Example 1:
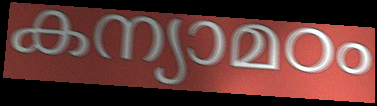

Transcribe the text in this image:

കന്യാമഠം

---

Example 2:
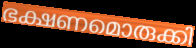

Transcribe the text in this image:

ഭക്ഷണമൊരുക്കി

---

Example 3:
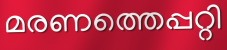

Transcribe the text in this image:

മരണത്തെപ്പറ്റി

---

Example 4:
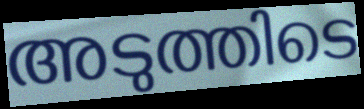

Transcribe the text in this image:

അടുത്തിടെ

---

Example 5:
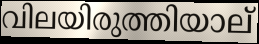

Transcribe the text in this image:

വിലയിരുത്തിയാല്